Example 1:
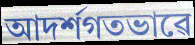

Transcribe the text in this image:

আদৰ্শগতভাৱে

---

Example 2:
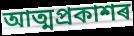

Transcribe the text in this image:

আত্মপ্ৰকাশৰ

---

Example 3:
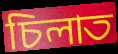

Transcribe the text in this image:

চিলাত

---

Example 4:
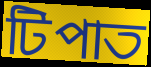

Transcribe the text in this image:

টিপাত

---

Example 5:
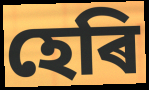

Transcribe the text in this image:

হেৰি